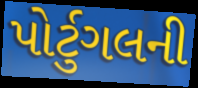
પોર્ટુગલની